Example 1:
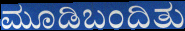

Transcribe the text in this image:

ಮೂಡಿಬಂದಿತು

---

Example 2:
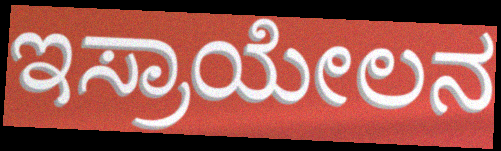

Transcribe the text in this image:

ಇಸ್ರಾಯೇಲನ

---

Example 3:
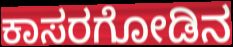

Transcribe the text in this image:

ಕಾಸರಗೋಡಿನ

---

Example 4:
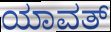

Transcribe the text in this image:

ಯಾವತ್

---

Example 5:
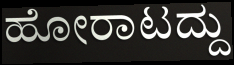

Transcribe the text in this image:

ಹೋರಾಟದ್ದು